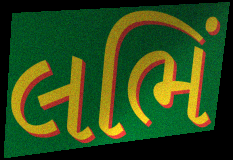
લભિં